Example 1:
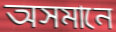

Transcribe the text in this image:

অসমানে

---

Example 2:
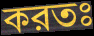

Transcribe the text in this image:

করতঃ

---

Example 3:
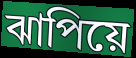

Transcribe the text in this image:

ঝাপিয়ে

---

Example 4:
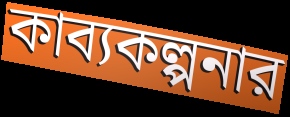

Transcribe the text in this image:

কাব্যকল্পনার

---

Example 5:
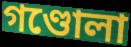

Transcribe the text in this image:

গণ্ডোলা